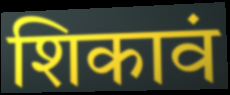
शिकावं